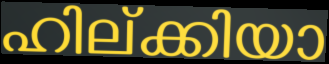
ഹില്ക്കിയാ